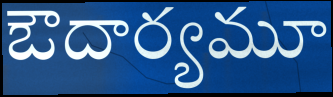
ఔదార్యమూ